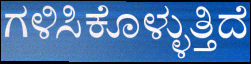
ಗಳಿಸಿಕೊಳ್ಳುತ್ತಿದೆ